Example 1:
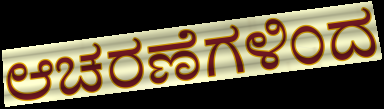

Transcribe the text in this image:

ಆಚರಣೆಗಳಿಂದ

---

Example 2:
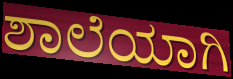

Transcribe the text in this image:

ಶಾಲೆಯಾಗಿ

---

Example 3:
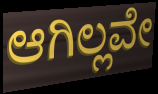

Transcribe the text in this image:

ಆಗಿಲ್ಲವೇ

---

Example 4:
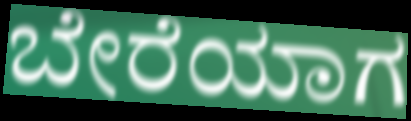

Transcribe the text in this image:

ಬೇರೆಯಾಗ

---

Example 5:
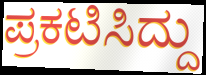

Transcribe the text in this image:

ಪ್ರಕಟಿಸಿದ್ದು